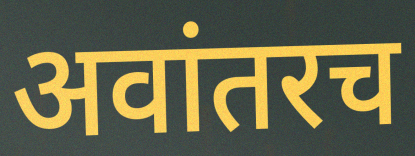
अवांतरच